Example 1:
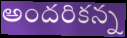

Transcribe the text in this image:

అందరికన్న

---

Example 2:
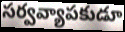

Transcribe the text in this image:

సర్వవ్యాపకుడూ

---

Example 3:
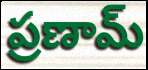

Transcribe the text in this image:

ప్రణామ్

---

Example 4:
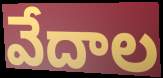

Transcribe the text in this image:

వేదాల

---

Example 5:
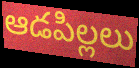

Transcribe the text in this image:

ఆడపిల్లలు